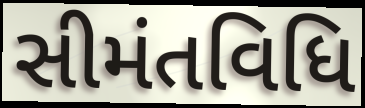
સીમંતવિધિ